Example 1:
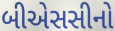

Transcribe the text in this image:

બીએસસીનો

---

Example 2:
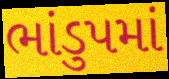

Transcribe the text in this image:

ભાંડુપમાં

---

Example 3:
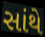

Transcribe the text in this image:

સાંથે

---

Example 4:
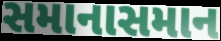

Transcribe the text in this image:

સમાનાસમાન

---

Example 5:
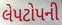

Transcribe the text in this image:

લેપટોપની